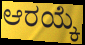
ಆರಯ್ಕೆ